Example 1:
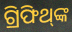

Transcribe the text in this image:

ଗ୍ରିଫିଥ୍‌ଙ୍କ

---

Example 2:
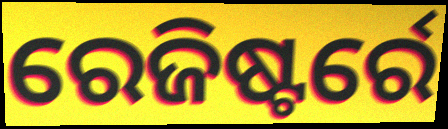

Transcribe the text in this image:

ରେଜିଷ୍ଟର୍ରେ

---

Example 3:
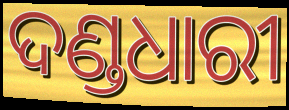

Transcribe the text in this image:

ଦଣ୍ଡଧାରୀ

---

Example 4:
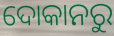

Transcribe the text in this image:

ଦୋକାନରୁ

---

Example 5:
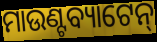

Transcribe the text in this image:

ମାଉଣ୍ଟବ୍ୟାଟେନ୍